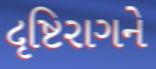
દૃષ્ટિરાગને